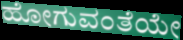
ಹೋಗುವಂತೆಯೇ